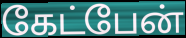
கேட்பேன்